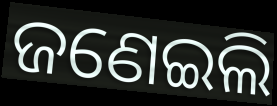
ଜଣେଇଲି